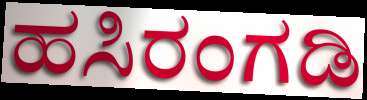
ಹಸಿರಂಗಡಿ